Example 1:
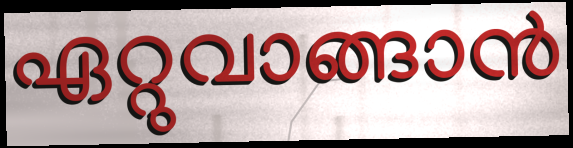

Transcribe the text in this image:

ഏറ്റുവാങ്ങാൻ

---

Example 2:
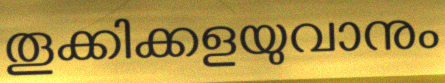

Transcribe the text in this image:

തൂക്കിക്കളയുവാനും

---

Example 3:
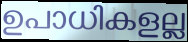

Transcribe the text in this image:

ഉപാധികളല്ല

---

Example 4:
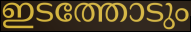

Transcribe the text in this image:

ഇടത്തോടും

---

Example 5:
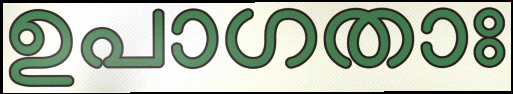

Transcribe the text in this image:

ഉപാഗതാഃ